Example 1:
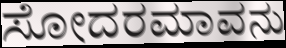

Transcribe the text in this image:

ಸೋದರಮಾವನು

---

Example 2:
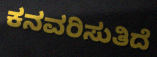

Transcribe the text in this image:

ಕನವರಿಸುತಿದೆ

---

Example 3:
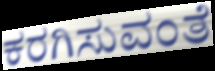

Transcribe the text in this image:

ಕರಗಿಸುವಂತೆ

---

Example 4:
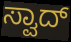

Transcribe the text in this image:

ಸ್ವಾದ್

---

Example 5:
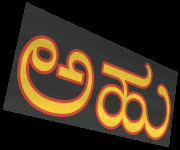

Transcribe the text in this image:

ಅಹು